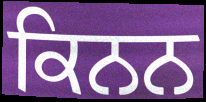
ਕਿਨਨ